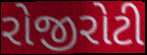
રોજીરોટી